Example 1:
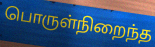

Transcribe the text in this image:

பொருள்நிறைந்த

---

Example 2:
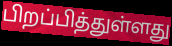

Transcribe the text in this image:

பிறப்பித்துள்ளது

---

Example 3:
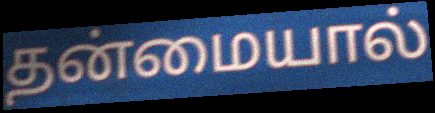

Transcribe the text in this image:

தன்மையால்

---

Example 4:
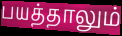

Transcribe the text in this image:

பயத்தாலும்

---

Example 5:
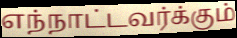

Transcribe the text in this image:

எந்நாட்டவர்க்கும்